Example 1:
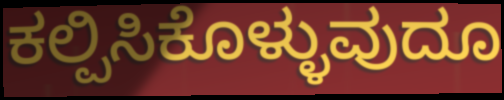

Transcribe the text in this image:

ಕಲ್ಪಿಸಿಕೊಳ್ಳುವುದೂ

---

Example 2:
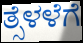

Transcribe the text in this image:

ತ್ಸೆಳಳೆಗೆ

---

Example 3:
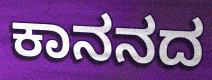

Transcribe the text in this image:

ಕಾನನದ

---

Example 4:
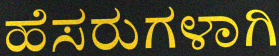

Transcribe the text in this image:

ಹೆಸರುಗಳಾಗಿ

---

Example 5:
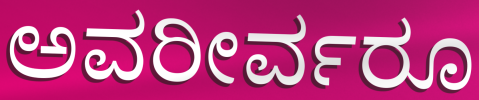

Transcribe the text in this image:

ಅವರೀರ್ವರೂ